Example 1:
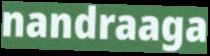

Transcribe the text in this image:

nandraaga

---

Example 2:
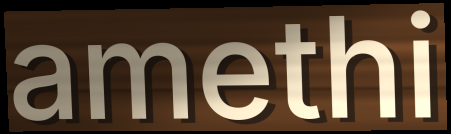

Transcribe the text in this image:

amethi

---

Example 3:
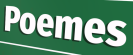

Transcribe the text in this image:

Poemes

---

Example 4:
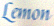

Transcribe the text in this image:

Lemon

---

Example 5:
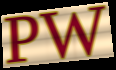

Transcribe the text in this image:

PW